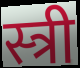
स्‍त्री